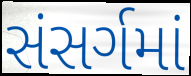
સંસર્ગમાં